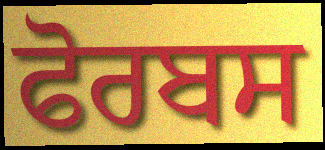
ਫੋਰਬਸ